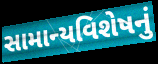
સામાન્યવિશેષનું